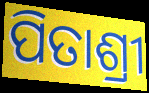
ପିତାଶ୍ରୀ